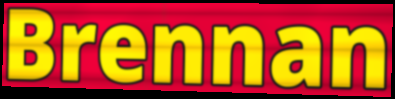
Brennan